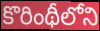
కొరింథీలోని